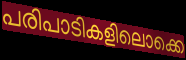
പരിപാടികളിലൊക്കെ